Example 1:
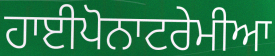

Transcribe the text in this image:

ਹਾਈਪੋਨਾਟਰੇਮੀਆ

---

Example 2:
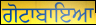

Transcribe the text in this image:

ਗੋਟਾਬਾਇਆ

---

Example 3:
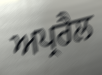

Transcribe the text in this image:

ਅਪ੍ਰਰੈਲ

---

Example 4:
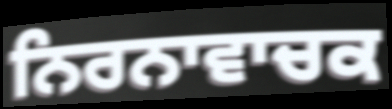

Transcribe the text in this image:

ਨਿਰਨਾਵਾਚਕ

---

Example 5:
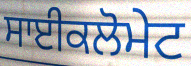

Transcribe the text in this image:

ਸਾਈਕਲੋਮੇਟ